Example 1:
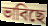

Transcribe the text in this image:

ভাবিছে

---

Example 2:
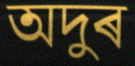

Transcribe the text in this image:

অদুৰ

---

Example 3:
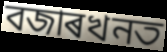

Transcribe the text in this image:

বজাৰখনত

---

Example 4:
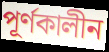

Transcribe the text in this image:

পূৰ্ণকালীন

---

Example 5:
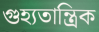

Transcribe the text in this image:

গুহ্যতান্ত্ৰিক